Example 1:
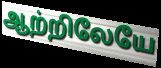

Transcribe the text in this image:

ஆற்றிலேயே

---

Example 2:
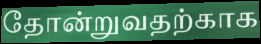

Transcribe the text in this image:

தோன்றுவதற்காக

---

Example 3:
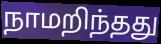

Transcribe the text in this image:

நாமறிந்தது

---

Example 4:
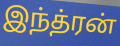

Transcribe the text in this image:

இந்த்ரன்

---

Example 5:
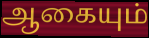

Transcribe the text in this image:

ஆகையும்